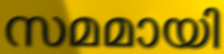
സമമായി